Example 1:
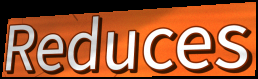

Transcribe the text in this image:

Reduces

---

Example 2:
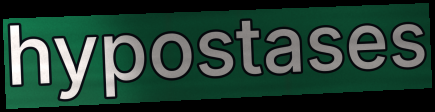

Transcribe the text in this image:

hypostases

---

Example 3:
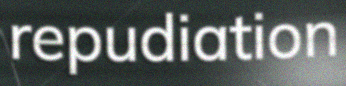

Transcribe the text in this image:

repudiation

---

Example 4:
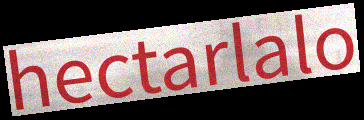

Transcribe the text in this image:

hectarlalo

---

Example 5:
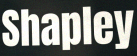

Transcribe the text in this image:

Shapley